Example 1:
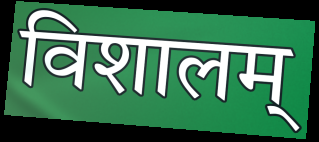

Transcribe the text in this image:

विशालम्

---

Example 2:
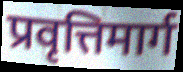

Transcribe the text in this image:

प्रवृत्तिमार्ग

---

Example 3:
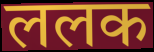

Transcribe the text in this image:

ललक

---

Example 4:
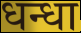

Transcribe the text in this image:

धन्धा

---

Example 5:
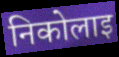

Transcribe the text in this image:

निकोलाइ